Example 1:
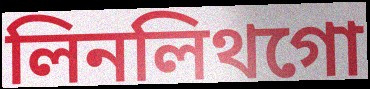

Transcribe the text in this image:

লিনলিথগো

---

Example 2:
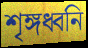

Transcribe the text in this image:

শৃঙ্গধ্বনি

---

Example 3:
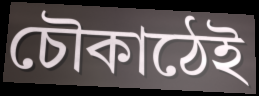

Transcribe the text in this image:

চৌকাঠেই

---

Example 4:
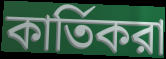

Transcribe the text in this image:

কার্তিকরা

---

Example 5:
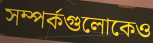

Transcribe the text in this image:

সম্পর্কগুলোকেও